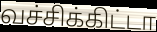
வச்சிக்கிட்டா